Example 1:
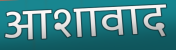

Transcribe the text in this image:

आशावाद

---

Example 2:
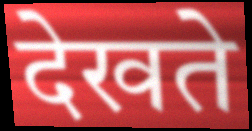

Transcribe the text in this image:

देखते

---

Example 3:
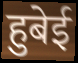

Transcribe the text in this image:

हुबेई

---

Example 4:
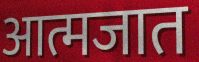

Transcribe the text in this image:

आत्मजात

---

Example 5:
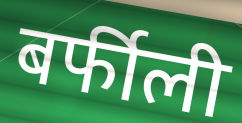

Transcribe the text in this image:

बर्फीली